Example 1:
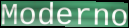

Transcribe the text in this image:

Moderno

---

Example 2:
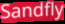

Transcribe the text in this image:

Sandfly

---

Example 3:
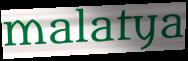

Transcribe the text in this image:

malatya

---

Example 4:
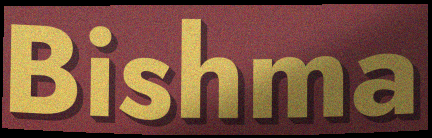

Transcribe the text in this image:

Bishma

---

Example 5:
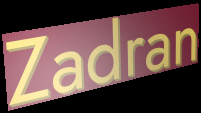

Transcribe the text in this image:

Zadran